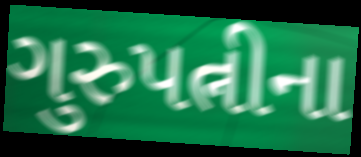
ગુરુપત્નીના